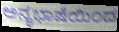
ಅನ್ಯಭಾಷೆಯಿಂದ